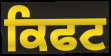
ਕਿਫਟ